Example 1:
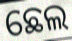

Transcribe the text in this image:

ଛେଲ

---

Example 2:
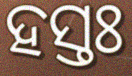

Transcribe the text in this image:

ହସ୍ତଃ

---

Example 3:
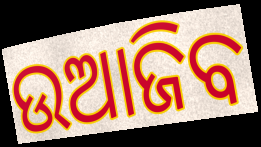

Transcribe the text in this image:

ଉଆଜିବ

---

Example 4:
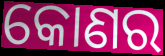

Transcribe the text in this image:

କୋଣର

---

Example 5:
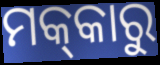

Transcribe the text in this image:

ମକ୍‌କାରୁ